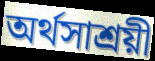
অর্থসাশ্রয়ী